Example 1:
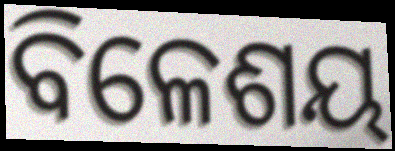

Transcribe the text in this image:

ବିଳେଶୟ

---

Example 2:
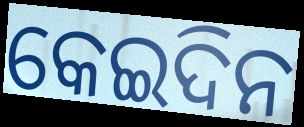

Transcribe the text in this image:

କେଇଦିନ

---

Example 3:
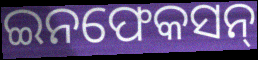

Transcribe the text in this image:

ଇନଫେକସନ୍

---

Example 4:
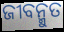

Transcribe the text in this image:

ଜୀବନ୍ମୁତ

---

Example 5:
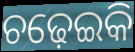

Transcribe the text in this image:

ଚଢ଼େଇକି